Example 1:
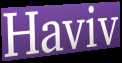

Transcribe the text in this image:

Haviv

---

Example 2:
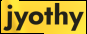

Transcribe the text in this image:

jyothy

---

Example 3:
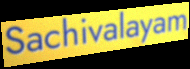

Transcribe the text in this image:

Sachivalayam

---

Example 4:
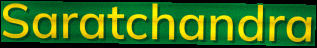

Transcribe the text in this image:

Saratchandra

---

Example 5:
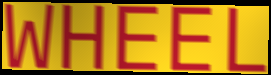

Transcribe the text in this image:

WHEEL